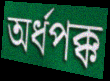
অর্ধপক্ক